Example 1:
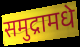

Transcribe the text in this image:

समुद्रामधे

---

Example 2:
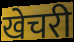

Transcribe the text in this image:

खेचरी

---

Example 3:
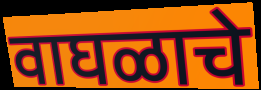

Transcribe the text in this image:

वाघळाचे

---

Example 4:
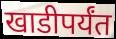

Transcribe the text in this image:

खाडीपर्यंत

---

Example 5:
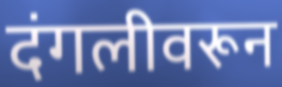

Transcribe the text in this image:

दंगलीवरून